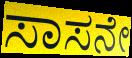
ಸಾಸನೇ